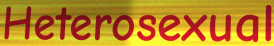
Heterosexual